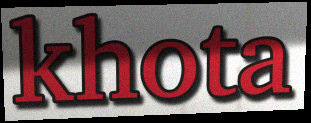
khota